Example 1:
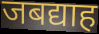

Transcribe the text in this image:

जबद्याह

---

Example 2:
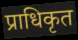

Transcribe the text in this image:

प्राधिकृत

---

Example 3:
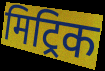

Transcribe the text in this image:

मिट्रिक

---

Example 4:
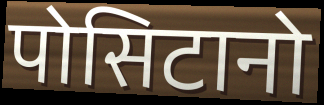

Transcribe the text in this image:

पोसिटानो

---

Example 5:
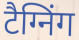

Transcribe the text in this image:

टैग्निंग